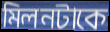
মিলনটাকে